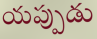
యప్పుడు